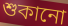
শুকানো